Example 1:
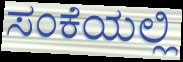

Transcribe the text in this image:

ಸಂಕೆಯಲ್ಲಿ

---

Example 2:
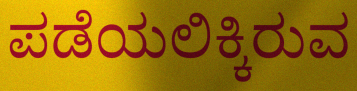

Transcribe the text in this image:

ಪಡೆಯಲಿಕ್ಕಿರುವ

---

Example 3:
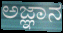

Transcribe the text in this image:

ಅಜ್ಞಾನ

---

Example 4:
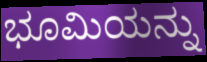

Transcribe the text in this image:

ಭೂಮಿಯನ್ನು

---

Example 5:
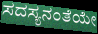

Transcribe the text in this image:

ಸದಸ್ಯನಂತೆಯೇ